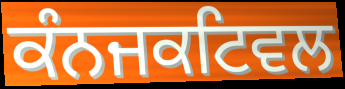
ਕੰਨਜਕਟਿਵਲ